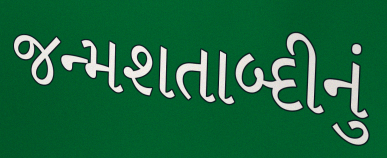
જન્મશતાબ્દીનું